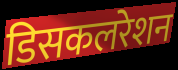
डिसकलरेशन